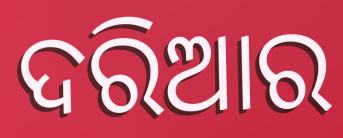
ଦରିଆର